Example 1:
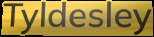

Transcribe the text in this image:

Tyldesley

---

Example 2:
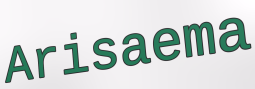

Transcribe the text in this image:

Arisaema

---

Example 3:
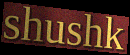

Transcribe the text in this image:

shushk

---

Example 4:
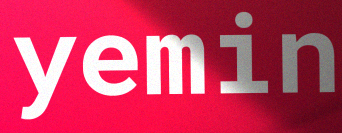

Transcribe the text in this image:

yemin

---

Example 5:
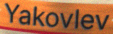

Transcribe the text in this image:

Yakovlev